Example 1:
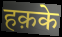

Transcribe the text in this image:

हक़के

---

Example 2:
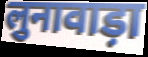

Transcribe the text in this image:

लुनावाड़ा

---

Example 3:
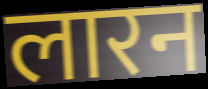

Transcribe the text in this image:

लारन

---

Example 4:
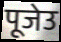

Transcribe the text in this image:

पूजेउ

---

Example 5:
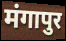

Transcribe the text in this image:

मंगापुर